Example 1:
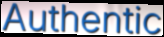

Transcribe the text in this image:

Authentic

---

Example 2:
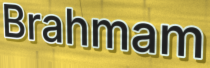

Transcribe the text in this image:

Brahmam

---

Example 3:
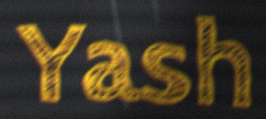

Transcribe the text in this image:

Yash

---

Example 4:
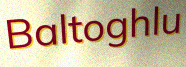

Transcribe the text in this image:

Baltoghlu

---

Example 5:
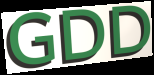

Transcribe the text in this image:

GDD